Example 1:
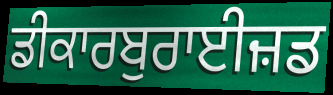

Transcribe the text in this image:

ਡੀਕਾਰਬੁਰਾਈਜ਼ਡ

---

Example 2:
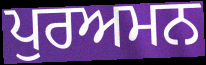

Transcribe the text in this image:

ਪੁਰਅਮਨ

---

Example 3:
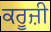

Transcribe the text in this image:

ਕਰੂਜ਼ੀ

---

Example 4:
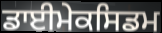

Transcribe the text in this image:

ਡਾਈਮੇਕਸਿਡਮ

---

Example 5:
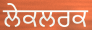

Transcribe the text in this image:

ਲੇਕਲਰਕ